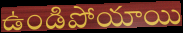
ఉండిపోయాయి